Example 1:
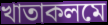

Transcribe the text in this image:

খাতাকলমে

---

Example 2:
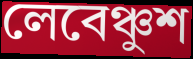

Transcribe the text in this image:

লেবেঞ্চুশ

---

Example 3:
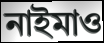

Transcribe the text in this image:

নাইমাও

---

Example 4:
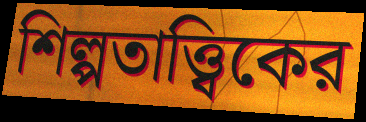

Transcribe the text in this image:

শিল্পতাত্ত্বিকের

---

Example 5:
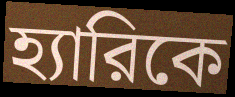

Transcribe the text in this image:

হ্যারিকে